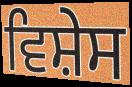
ਵਿਸ਼ੇਸ